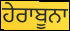
ਹੇਰਾਬੂਨਾ